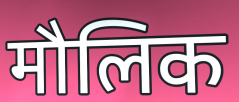
मौलिक